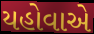
યહોવાએ